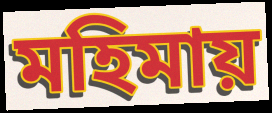
মহিমায়